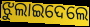
ଝୁଲାଇଦେଲେ